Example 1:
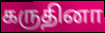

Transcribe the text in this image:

கருதினா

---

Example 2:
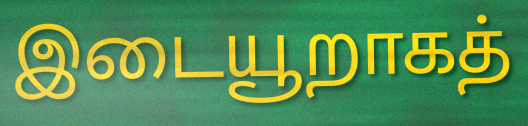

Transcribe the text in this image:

இடையூறாகத்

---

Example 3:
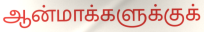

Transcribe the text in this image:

ஆன்மாக்களுக்குக்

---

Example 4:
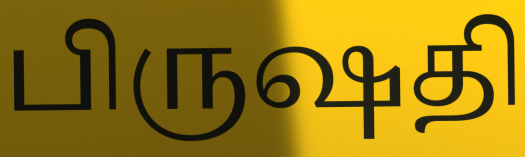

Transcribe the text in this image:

பிருஷதி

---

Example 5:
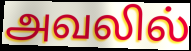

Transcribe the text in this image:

அவலில்